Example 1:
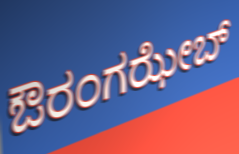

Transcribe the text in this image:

ಔರಂಗಝೇಬ್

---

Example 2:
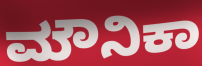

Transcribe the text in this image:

ಮೌನಿಕಾ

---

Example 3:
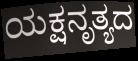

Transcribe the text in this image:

ಯಕ್ಷನೃತ್ಯದ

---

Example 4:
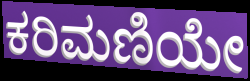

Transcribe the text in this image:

ಕರಿಮಣಿಯೇ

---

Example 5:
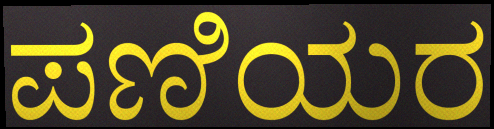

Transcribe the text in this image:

ಪಣಿಯರ